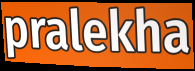
pralekha